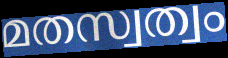
മതസ്വത്വം